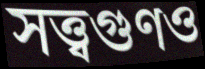
সত্ত্বগুণও